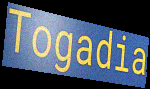
Togadia